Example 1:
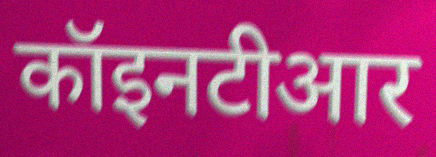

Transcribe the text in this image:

कॉइनटीआर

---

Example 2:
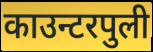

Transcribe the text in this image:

काउन्टरपुली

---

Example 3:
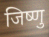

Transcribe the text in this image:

जिष्णु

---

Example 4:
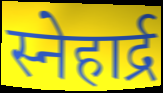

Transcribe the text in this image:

स्नेहार्द्र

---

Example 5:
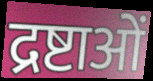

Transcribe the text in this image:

द्रष्टाओं